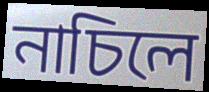
নাচিলে